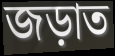
জড়াত